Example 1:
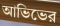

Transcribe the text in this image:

আভিভের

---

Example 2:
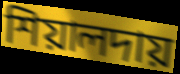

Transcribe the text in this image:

শিয়ালদায়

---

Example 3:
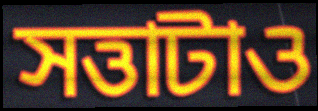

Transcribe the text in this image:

সত্তাটাও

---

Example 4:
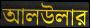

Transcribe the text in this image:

আলউলার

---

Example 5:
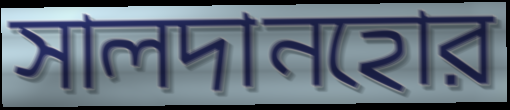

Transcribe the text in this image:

সালদানহোর